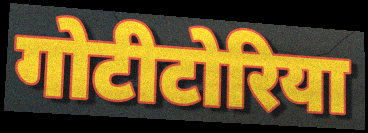
गोटीटोरिया